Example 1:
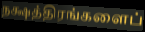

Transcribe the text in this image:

நக்ஷத்திரங்களைப்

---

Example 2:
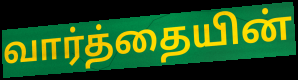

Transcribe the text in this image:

வார்த்தையின்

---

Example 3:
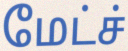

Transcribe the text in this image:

மேட்ச்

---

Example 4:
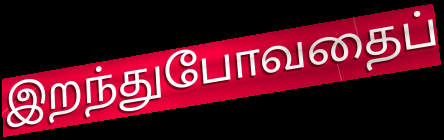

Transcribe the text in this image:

இறந்துபோவதைப்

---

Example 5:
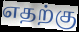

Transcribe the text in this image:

எதற்கு